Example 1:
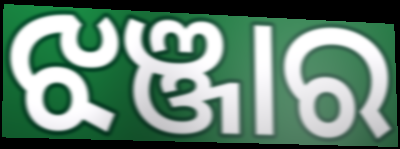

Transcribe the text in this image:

ଝଞ୍ଜାର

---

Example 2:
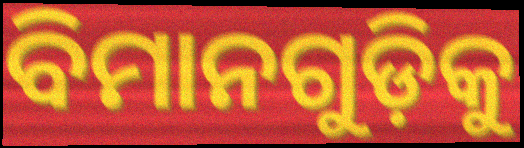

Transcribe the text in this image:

ବିମାନଗୁଡ଼ିକୁ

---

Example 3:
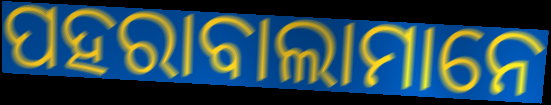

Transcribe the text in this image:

ପହରାବାଲାମାନେ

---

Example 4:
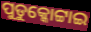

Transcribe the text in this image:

ପୁଡୁକ୍କୋଟ୍ଟାଇ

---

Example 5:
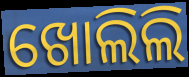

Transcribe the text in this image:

ଖୋଲିଲି